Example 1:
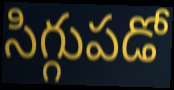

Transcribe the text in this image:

సిగ్గుపడో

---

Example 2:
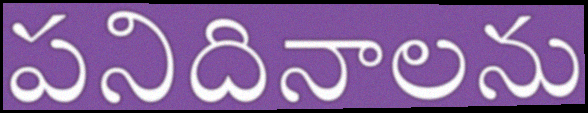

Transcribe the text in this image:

పనిదినాలను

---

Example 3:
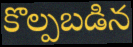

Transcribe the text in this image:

కొల్పబడిన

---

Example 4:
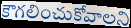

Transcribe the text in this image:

కౌగలించుకోవాలని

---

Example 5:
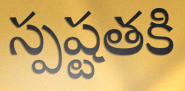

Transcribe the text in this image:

స్పష్టతకి